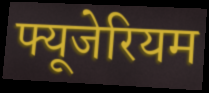
फ्यूजेरियम